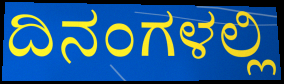
ದಿನಂಗಳಲ್ಲಿ